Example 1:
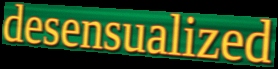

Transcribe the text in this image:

desensualized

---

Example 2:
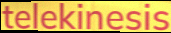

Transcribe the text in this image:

telekinesis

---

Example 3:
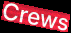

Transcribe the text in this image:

Crews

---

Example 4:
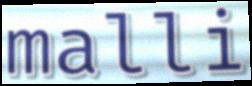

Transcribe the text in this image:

malli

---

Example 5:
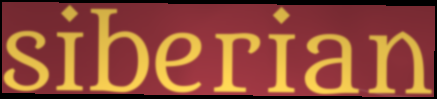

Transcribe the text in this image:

siberian